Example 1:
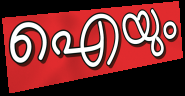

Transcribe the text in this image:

ഐയും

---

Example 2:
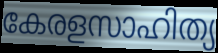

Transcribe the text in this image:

കേരളസാഹിത്യ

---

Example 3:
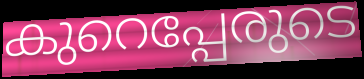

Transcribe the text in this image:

കുറെപ്പേരുടെ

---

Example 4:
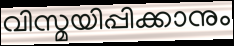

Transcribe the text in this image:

വിസ്മയിപ്പിക്കാനും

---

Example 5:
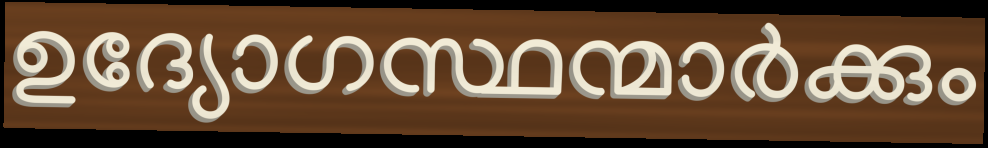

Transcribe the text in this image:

ഉദ്യോഗസ്ഥന്മാർക്കും